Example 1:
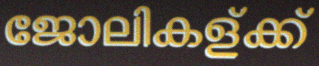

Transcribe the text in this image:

ജോലികള്ക്ക്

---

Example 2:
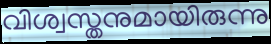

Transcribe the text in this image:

വിശ്വസ്തനുമായിരുന്നു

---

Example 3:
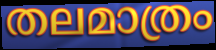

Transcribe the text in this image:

തലമാത്രം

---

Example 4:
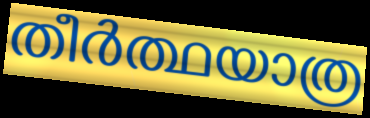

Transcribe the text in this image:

തീർത്ഥയാത്ര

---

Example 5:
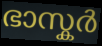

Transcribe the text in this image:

ഭാസ്കർ